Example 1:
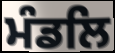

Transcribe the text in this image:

ਮੰਡਲਿ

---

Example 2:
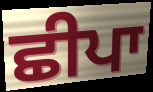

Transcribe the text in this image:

ਛੀਪਾ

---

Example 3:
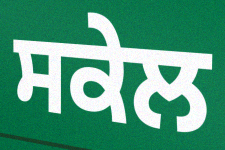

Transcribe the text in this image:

ਸਕੇਲ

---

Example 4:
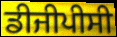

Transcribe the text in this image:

ਡੀਜੀਪੀਸੀ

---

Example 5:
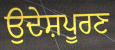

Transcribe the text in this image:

ਉਦੇਸ਼ਪੂਰਣ